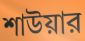
শাউয়ার